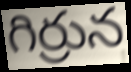
గిర్రున